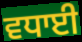
ਵਧਾਈ